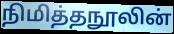
நிமித்தநூலின்